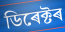
ডিৰেক্টৰ